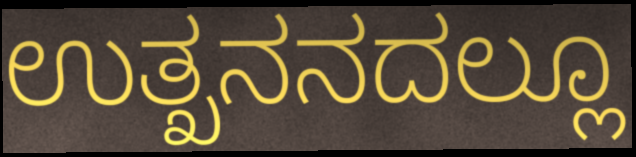
ಉತ್ಖನನದಲ್ಲೂ